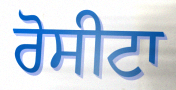
ਰੋਸੀਟਾ